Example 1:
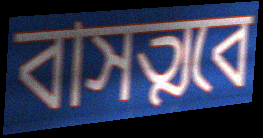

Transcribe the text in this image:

বাসত্মবে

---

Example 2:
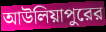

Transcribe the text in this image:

আউলিয়াপুরের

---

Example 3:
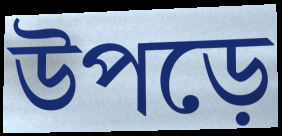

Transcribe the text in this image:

উপড়ে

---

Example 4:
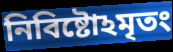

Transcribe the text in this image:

নিবিষ্টোঽমৃতং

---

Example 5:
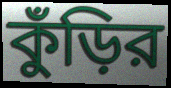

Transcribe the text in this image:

কুঁড়ির